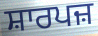
ਸ਼ਾਰਪਜ਼